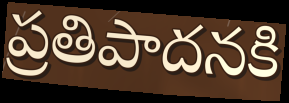
ప్రతిపాదనకి